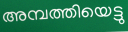
അമ്പത്തിയെട്ടു